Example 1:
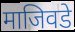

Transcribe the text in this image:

माजिवडे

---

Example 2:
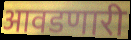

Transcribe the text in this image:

आवडणारी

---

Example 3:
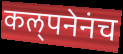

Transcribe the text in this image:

कल्पनेनंच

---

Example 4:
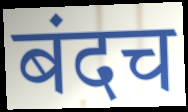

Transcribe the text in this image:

बंदच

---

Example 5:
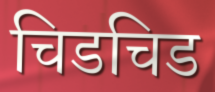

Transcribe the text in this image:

चिडचिड